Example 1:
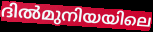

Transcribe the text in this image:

ദിൽമുനിയയിലെ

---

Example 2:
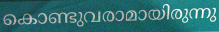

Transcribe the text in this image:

കൊണ്ടുവരാമായിരുന്നു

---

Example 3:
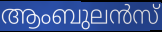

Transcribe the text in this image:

ആംബുലൻസ്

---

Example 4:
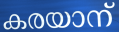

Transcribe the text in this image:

കരയാന്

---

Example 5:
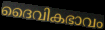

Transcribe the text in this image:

ദൈവികഭാവം